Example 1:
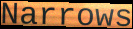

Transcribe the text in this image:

Narrows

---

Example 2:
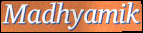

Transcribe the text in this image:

Madhyamik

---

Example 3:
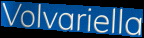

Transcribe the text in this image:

Volvariella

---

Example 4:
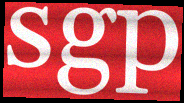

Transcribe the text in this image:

sgp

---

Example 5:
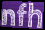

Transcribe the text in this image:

nfh